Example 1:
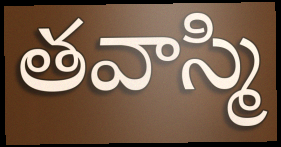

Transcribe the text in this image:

తవాస్మి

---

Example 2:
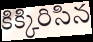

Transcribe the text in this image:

కిక్కిరిసిన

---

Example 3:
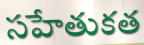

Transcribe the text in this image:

సహేతుకత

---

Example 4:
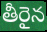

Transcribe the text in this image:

తీరైన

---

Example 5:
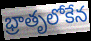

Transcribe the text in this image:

భ్రాతృలోకేన